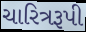
ચારિત્રરૂપી